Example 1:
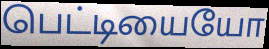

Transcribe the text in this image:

பெட்டியையோ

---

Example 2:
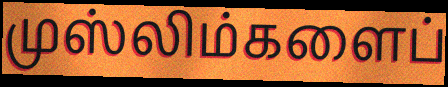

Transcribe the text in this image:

முஸ்லிம்களைப்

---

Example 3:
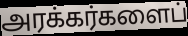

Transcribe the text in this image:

அரக்கர்களைப்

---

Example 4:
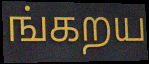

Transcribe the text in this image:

ங்கறய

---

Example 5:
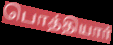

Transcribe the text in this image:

பொத்தியார்